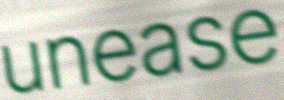
unease